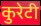
कुरेटी